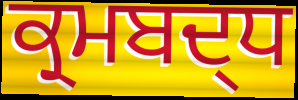
ਕ੍ਰਮਬਦ੍ਧ